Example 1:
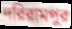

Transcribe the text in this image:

দরিরামপুর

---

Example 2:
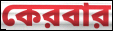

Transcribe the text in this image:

কেরবার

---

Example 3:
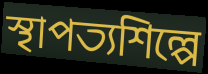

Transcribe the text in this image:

স্থাপত্যশিল্পে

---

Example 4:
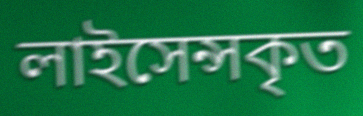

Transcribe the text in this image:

লাইসেন্সকৃত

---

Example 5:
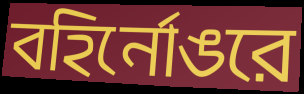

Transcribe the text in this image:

বহির্নোঙরে